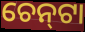
ଚେନ୍‌ଟା